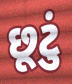
છૂટું